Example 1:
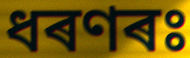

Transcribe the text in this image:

ধৰণৰঃ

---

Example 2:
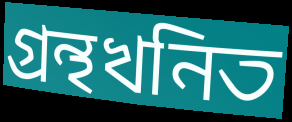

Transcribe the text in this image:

গ্ৰন্থখনিত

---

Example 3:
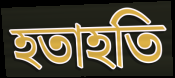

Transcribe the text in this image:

হতাহতি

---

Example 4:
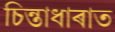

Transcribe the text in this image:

চিন্তাধাৰাত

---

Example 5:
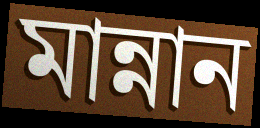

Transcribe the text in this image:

মান্নান